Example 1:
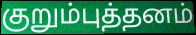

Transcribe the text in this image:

குறும்புத்தனம்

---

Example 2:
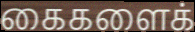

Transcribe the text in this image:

கைகளைக்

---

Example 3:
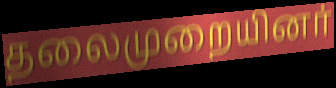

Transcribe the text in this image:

தலைமுறையினர்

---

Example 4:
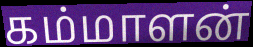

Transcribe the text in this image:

கம்மாளன்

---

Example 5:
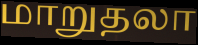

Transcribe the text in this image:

மாறுதலா